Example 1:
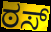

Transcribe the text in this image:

ಠಸ್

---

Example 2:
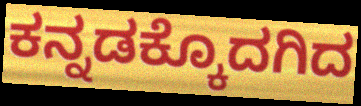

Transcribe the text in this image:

ಕನ್ನಡಕ್ಕೊದಗಿದ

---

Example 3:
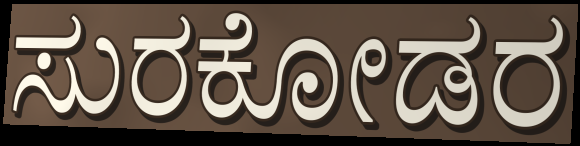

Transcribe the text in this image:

ಸುರಕೋಡರ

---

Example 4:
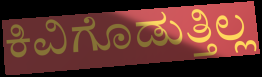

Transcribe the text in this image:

ಕಿವಿಗೊಡುತ್ತಿಲ್ಲ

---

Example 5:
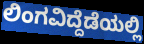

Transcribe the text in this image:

ಲಿಂಗವಿದ್ದೆಡೆಯಲ್ಲಿ